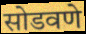
सोडवणे